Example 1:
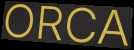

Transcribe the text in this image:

ORCA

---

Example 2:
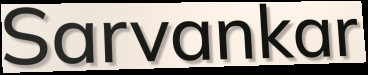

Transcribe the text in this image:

Sarvankar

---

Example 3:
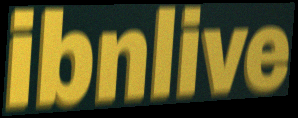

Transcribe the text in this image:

ibnlive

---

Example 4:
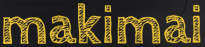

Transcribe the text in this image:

makimai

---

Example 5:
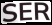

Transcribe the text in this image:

SER